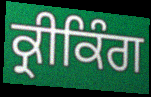
ਕ੍ਰੀਕਿੰਗ